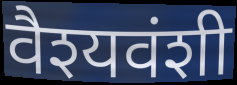
वैश्यवंशी